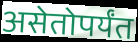
असेतोपर्यंत